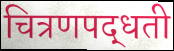
चित्रणपद्धती